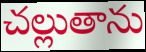
చల్లుతాను